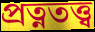
প্রত্নতত্ত্ব